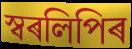
স্বৰলিপিৰ